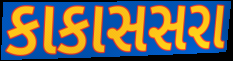
કાકાસસરા